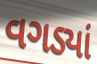
વગડ્યાં